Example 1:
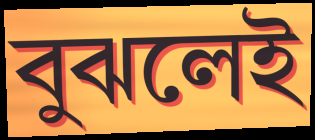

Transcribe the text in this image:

বুঝলেই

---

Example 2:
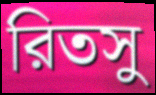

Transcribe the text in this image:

রিতসু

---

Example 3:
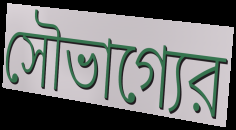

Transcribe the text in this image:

সৌভাগ্যের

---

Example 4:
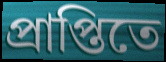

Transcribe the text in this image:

প্রাপ্তিতে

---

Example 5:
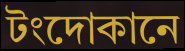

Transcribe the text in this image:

টংদোকানে